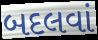
બદલવાં